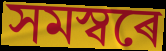
সমস্বৰে